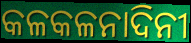
କଳକଳନାଦିନୀ